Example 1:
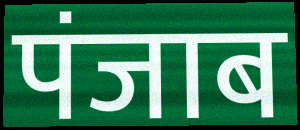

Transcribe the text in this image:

पंजाब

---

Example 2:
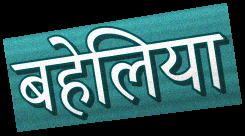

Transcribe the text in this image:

बहेलिया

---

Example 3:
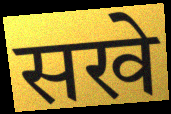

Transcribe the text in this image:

सखे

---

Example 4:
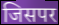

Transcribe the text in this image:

जिसपर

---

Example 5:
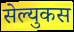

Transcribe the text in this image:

सेल्युकस